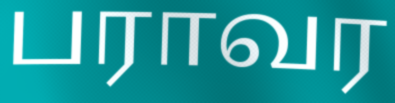
பராவர